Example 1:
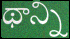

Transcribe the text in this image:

థాన్ని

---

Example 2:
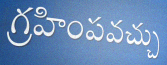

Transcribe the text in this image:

గ్రహింపవచ్చు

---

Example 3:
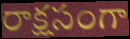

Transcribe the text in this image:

రాక్షసంగా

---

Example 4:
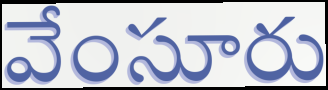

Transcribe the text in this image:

వేంసూరు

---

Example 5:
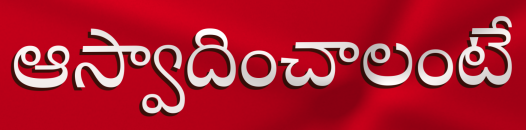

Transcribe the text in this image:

ఆస్వాదించాలంటే